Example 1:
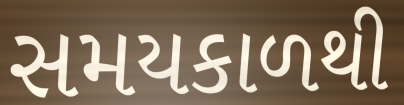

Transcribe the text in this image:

સમયકાળથી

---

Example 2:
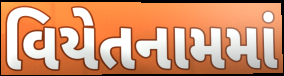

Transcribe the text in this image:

વિયેતનામમાં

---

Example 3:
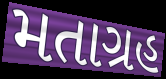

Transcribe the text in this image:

મતાગ્રહ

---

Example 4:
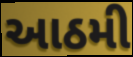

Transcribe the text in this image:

આઠમી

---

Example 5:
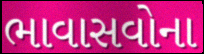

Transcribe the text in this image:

ભાવાસવોના